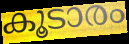
കൂടാരം